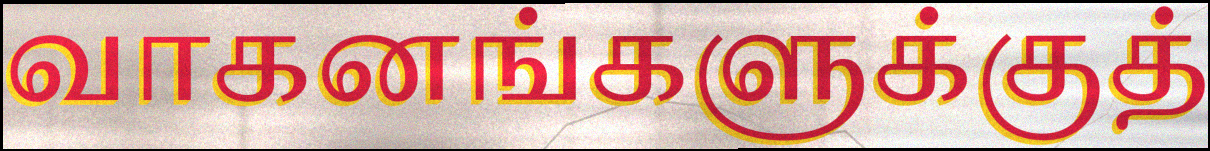
வாகனங்களுக்குத்